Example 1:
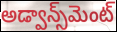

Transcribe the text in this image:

అడ్వాన్స్‌మెంట్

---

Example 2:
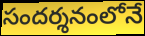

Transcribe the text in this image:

సందర్శనంలోనే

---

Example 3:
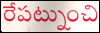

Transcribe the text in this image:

రేపట్నుంచి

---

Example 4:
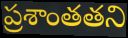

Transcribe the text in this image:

ప్రశాంతతని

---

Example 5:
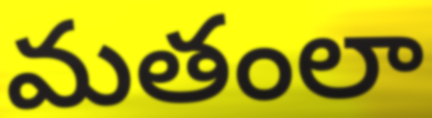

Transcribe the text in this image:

మతంలా